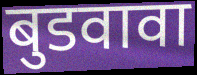
बुडवावा